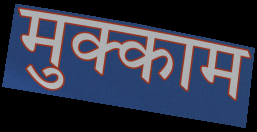
मुक्‍काम